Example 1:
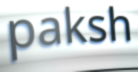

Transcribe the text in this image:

paksh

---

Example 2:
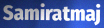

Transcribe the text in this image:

Samiratmaj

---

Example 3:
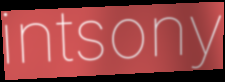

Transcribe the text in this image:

intsony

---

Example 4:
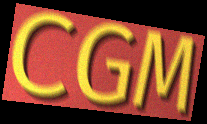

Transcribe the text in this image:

CGM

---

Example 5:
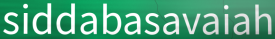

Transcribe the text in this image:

siddabasavaiah